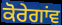
ਕੋਰੇਗਾਂਵ